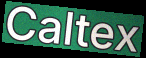
Caltex